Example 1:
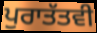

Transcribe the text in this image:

ਪੁਰਾਤੱਤਵੀ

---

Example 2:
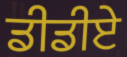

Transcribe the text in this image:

ਡੀਡੀਏ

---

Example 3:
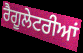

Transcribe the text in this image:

ਰੈਗੂਲੇਟਰੀਆਂ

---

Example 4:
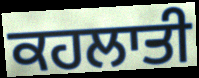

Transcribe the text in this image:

ਕਹਲਾਤੀ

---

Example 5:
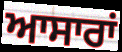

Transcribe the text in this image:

ਆਸਾਰਾਂ